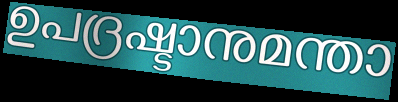
ഉപദ്രഷ്ടാനുമന്താ